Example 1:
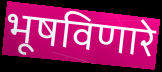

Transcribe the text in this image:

भूषविणारे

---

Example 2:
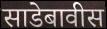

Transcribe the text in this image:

साडेबावीस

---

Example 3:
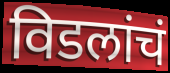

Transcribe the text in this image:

विडलांचं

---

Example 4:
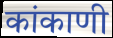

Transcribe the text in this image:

कांकाणी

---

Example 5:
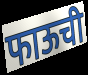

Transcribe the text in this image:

फाऊची